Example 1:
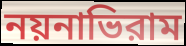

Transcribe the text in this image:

নয়নাভিরাম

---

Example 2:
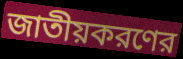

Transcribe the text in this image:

জাতীয়করণের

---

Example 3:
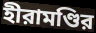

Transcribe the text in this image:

হীরামণ্ডির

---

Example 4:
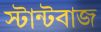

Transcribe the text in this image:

স্টান্টবাজ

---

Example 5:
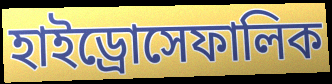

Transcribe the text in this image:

হাইড্রোসেফালিক